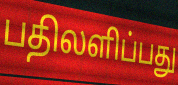
பதிலளிப்பது